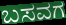
ಬಸವಗ